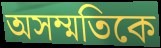
অসম্মতিকে